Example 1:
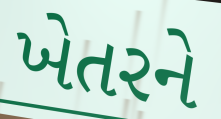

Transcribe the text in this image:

ખેતરને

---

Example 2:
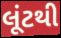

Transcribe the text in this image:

લૂંટથી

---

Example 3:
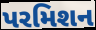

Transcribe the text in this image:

પરમિશન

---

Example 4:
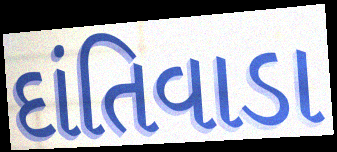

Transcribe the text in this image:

દાંતિવાડા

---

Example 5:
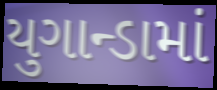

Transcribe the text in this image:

યુગાન્ડામાં